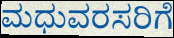
ಮಧುವರಸರಿಗೆ